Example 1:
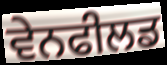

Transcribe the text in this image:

ਵੇਨਫੀਲਡ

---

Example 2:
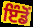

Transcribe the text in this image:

ਇੰਡੋਂ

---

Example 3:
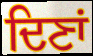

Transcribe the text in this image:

ਦਿਣਾਂ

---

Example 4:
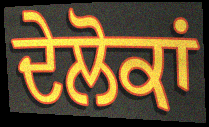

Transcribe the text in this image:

ਦੇਲੋਕਾਂ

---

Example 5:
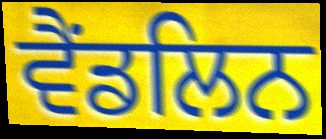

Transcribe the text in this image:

ਵੈਂਡਲਿਨ